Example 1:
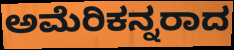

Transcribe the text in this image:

ಅಮೆರಿಕನ್ನರಾದ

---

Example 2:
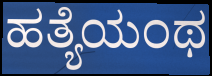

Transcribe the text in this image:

ಹತ್ಯೆಯಂಥ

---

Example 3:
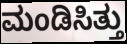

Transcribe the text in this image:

ಮಂಡಿಸಿತ್ತು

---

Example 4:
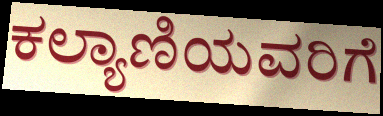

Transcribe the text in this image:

ಕಲ್ಯಾಣಿಯವರಿಗೆ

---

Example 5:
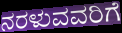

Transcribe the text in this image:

ನರಳುವವರಿಗೆ